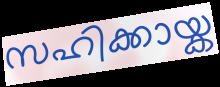
സഹിക്കായ്ക